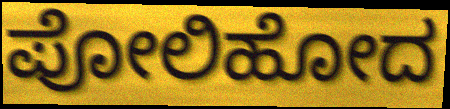
ಪೋಲಿಹೋದ